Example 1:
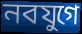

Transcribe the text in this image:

নবযুগে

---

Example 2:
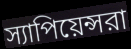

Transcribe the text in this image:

স্যাপিয়েন্সরা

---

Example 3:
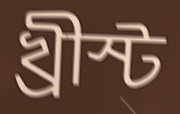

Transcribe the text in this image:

খ্রীস্ট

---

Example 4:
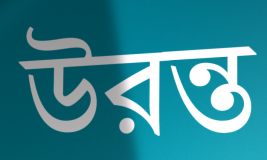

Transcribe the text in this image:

উরন্ত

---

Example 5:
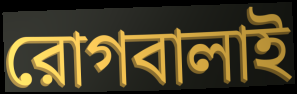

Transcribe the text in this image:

রোগবালাই